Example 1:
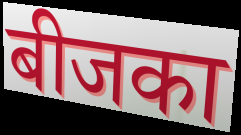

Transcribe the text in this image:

बीजका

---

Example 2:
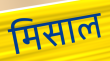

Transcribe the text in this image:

मिसाल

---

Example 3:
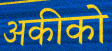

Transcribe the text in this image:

अकीको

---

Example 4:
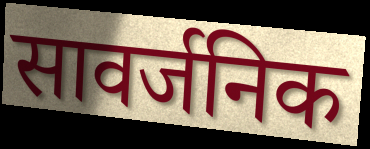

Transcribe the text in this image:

सावर्जनिक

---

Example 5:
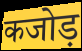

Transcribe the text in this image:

कजोड़